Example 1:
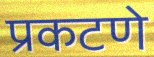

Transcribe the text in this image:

प्रकटणे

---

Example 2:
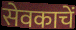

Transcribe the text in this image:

सेवकाचें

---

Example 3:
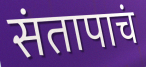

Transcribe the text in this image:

संतापाचं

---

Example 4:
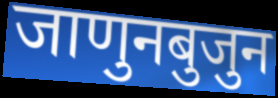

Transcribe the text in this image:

जाणुनबुजुन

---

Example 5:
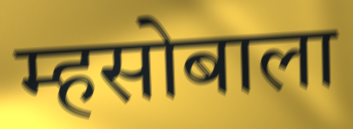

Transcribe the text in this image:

म्हसोबाला